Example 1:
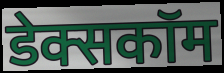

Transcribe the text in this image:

डेक्सकॉम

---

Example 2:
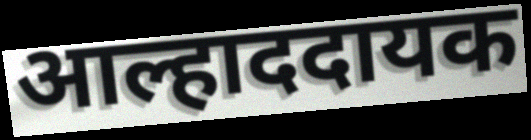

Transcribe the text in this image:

आल्हाददायक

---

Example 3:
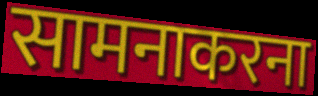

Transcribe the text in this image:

सामनाकरना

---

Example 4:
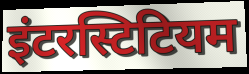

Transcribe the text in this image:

इंटरस्टिटियम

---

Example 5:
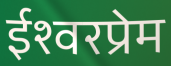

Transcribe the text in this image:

ईश्वरप्रेम